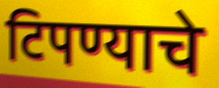
टिपण्याचे